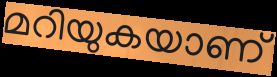
മറിയുകയാണ്